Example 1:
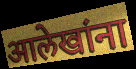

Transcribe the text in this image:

आलेखांना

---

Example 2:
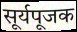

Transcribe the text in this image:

सूर्यपूजक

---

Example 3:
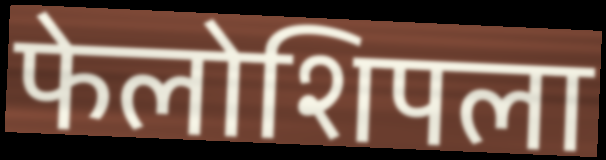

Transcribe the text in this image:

फेलोशिपला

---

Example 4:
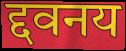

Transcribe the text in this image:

द्दवनय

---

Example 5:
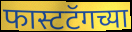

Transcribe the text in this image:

फास्टटॅगच्या